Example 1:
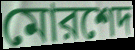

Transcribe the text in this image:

মোরশেদ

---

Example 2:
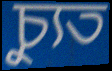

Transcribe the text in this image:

চ্যুত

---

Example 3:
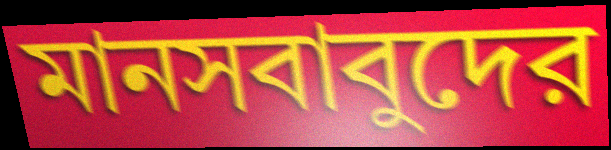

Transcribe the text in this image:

মানসবাবুদের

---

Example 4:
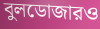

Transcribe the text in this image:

বুলডোজারও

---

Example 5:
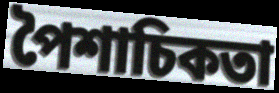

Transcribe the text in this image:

পৈশাচিকতা